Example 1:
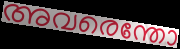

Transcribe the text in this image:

അവരെന്തോ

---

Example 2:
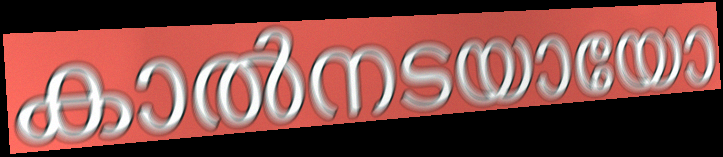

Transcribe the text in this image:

കാൽനടയായോ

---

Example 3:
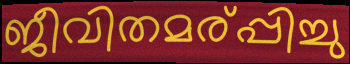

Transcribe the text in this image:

ജീവിതമര്പ്പിച്ചു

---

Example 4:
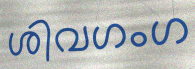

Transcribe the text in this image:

ശിവഗംഗ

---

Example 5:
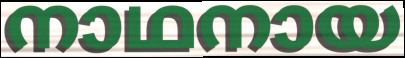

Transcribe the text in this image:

നാഥനായ